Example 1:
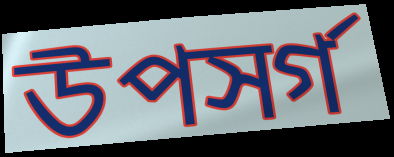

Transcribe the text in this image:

উপসর্গ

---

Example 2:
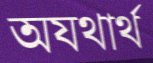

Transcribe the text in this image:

অযথার্থ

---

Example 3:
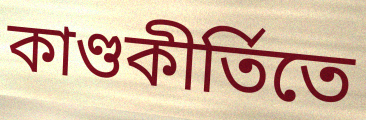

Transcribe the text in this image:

কাণ্ডকীর্তিতে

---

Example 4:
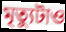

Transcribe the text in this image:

মৃত্যুটাও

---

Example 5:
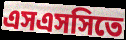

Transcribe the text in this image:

এসএসসিতে